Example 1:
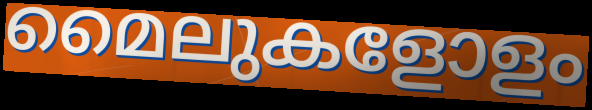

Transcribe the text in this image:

മൈലുകളോളം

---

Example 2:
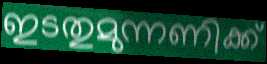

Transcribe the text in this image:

ഇടതുമുന്നണിക്ക്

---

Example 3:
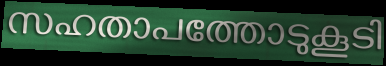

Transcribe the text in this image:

സഹതാപത്തോടുകൂടി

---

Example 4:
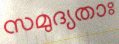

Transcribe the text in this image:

സമുദ്യതാഃ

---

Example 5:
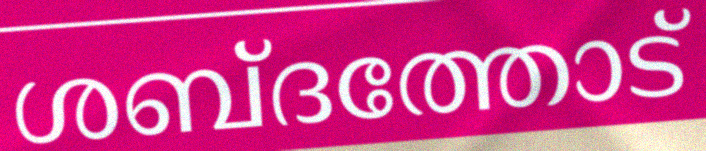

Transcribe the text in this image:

ശബ്ദത്തോട്